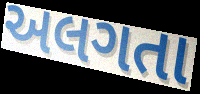
અલગતા